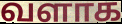
வளாக